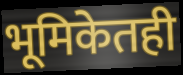
भूमिकेतही